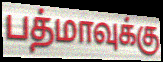
பத்மாவுக்கு